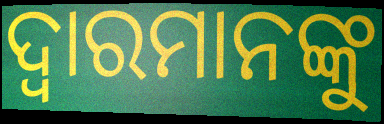
ଦ୍ୱାରମାନଙ୍କୁ